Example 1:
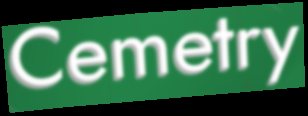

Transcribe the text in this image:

Cemetry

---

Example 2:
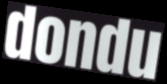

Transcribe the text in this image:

dondu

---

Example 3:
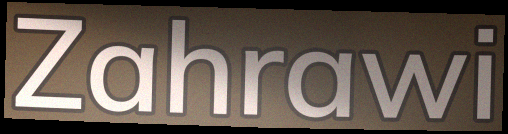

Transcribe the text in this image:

Zahrawi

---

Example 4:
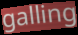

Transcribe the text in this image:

galling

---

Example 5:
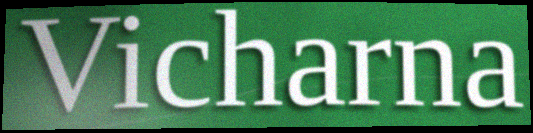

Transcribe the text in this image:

Vicharna